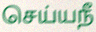
செய்யநீ